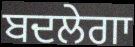
ਬਦਲੇਗਾ